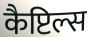
कैप्टिल्स